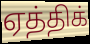
ஏத்திக்